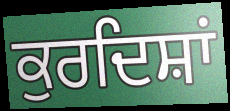
ਕੁਰਦਿਸ਼ਾਂ